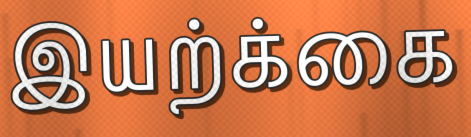
இயற்க்கை